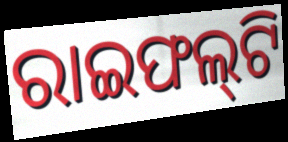
ରାଇଫଲ୍‌ଟି